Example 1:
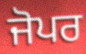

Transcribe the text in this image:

ਜੋਪਰ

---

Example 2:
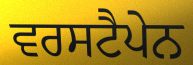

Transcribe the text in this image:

ਵਰਸਟੈਪੇਨ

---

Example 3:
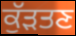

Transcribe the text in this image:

ਕੁੱੜਤਣ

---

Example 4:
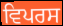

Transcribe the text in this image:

ਵਿਪਰਸ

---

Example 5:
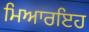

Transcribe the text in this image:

ਮਿਆਰਇਹ